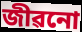
জীৱনো